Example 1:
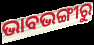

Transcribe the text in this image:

ଭାବଭଙ୍ଗୀରୁ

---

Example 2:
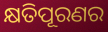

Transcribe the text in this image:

କ୍ଷତିପୂରଣର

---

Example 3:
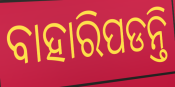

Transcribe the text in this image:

ବାହାରିପଡନ୍ତି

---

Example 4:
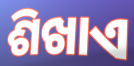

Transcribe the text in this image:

ଶିଖାଏ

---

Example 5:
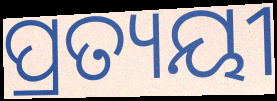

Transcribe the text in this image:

ପ୍ରତ୍ୟୟୀ